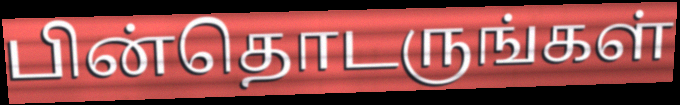
பின்தொடருங்கள்